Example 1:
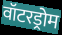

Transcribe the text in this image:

वॉटरड्रोम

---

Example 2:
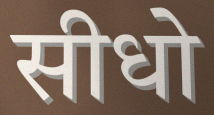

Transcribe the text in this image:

सीधो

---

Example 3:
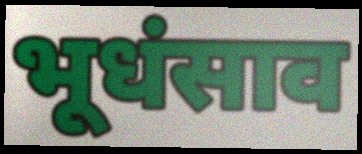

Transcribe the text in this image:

भूधंसाव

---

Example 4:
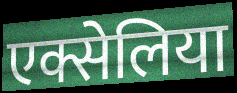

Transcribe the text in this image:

एक्सेलिया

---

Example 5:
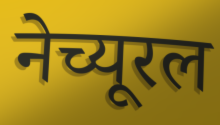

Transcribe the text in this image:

नेच्यूरल